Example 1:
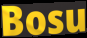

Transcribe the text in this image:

Bosu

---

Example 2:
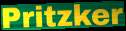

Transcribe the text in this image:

Pritzker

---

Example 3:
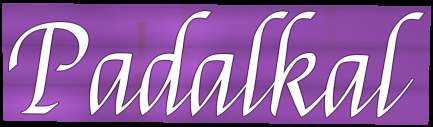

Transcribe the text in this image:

Padalkal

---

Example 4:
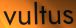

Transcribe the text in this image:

vultus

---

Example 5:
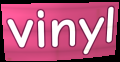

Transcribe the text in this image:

vinyl